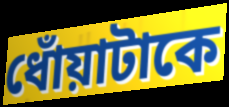
ধোঁয়াটাকে